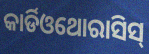
କାର୍ଡିଓଥୋରାସିସ୍